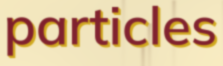
particles